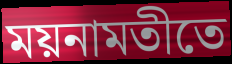
ময়নামতীতে